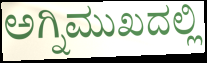
ಅಗ್ನಿಮುಖದಲ್ಲಿ